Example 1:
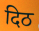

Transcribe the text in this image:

दिठ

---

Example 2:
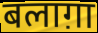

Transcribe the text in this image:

बलाग़ा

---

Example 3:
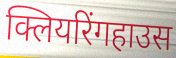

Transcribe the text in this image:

क्लियरिंगहाउस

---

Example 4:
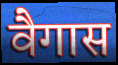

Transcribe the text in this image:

वैगास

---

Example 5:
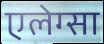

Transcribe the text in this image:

एलेग्सा